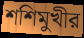
শশিমুখীর